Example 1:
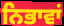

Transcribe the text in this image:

ਨਿਭਾਵਾਂ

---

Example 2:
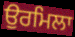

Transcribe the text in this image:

ਉਰਮਿਲਾ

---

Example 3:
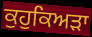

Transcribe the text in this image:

ਕੁਹੁਕਿਅੜਾ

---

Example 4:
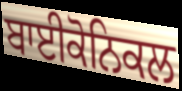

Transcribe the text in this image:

ਬਾਈਕੋਨਿਕਲ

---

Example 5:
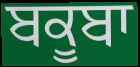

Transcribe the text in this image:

ਬਕੂਬਾ